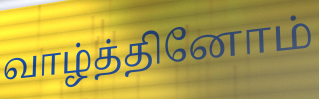
வாழ்த்தினோம்